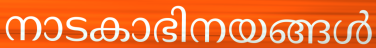
നാടകാഭിനയങ്ങൾ